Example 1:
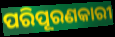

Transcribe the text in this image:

ପରିପୂରଣକାରୀ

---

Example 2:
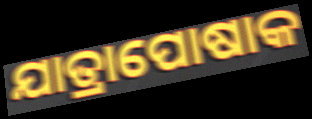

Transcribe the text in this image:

ଯାତ୍ରାପୋଷାକ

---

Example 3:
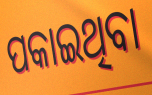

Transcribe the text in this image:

ପକାଇଥିବା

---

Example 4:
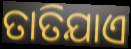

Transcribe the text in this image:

ତାତିଯାଏ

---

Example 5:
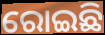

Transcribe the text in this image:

ରୋଇଛି